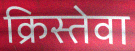
क्रिस्तेवा